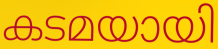
കടമയായി